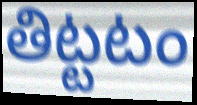
తిట్టటం